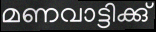
മണവാട്ടിക്കു്